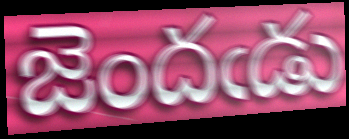
జెందఁడు